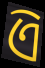
ଏି